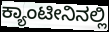
ಕ್ಯಾಂಟೀನಿನಲ್ಲಿ